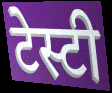
टेस्‍टी